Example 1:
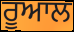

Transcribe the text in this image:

ਰੂਆਲ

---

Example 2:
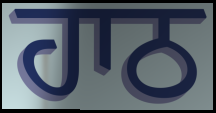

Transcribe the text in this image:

ਹਾਠ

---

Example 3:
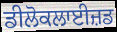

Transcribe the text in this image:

ਡੀਲੋਕਲਾਈਜ਼ਡ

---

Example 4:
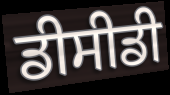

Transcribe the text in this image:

ਡੀਸੀਡੀ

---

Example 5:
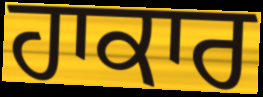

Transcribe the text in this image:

ਹਾਕਾਰ